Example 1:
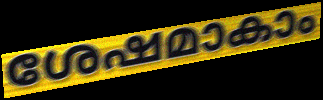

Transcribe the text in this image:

ശേഷമാകാം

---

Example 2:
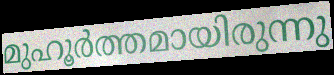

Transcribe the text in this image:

മുഹൂർത്തമായിരുന്നു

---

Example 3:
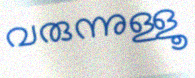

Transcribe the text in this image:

വരുന്നുള്ളൂ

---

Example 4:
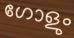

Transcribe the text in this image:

ഗോളും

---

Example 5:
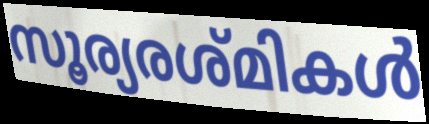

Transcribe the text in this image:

സൂര്യരശ്മികൾ